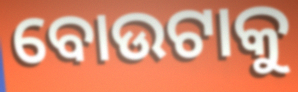
ବୋଉଟାକୁ